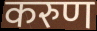
करुण